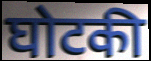
घोटकी